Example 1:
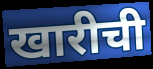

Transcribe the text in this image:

खारीची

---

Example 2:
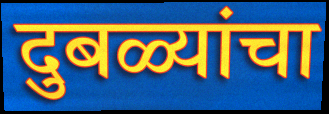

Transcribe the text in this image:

दुबळ्यांचा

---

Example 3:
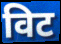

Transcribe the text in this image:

विट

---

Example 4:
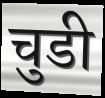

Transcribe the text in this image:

चुडी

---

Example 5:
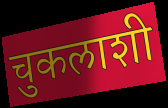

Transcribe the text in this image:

चुकलाशी